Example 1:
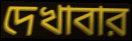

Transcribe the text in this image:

দেখাবার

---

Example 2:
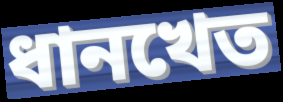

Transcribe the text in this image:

ধানখেত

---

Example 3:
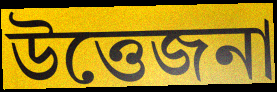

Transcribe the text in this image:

উত্তেজনা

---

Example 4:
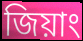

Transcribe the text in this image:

জিয়াং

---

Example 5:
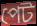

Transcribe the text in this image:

পেট